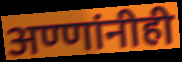
अण्णांनीही